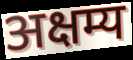
अक्षम्‍य